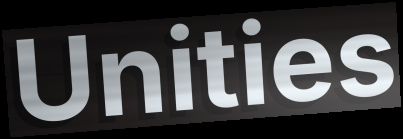
Unities